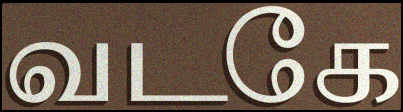
வடகே